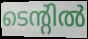
ടെന്റിൽ